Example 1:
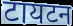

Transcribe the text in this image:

टायटन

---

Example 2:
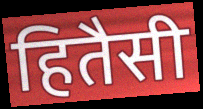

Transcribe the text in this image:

हितैसी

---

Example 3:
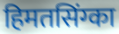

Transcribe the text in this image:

हिमतसिंग्का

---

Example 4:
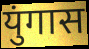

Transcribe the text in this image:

युंगास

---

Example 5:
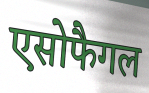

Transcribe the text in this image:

एसोफैगल